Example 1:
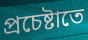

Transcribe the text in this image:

প্রচেষ্টাতে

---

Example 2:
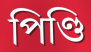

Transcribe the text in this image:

পিণ্ডি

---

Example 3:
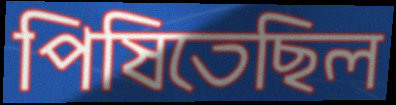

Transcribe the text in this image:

পিষিতেছিল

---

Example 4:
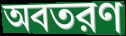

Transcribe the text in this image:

অবতরণ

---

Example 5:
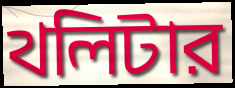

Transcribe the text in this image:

থলিটার